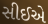
સીઈએ